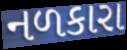
નળકારા